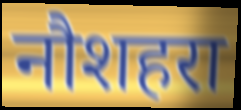
नौशहरा